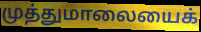
முத்துமாலையைக்